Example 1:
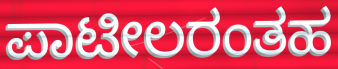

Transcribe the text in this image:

ಪಾಟೀಲರಂತಹ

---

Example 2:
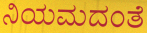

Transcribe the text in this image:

ನಿಯಮದಂತೆ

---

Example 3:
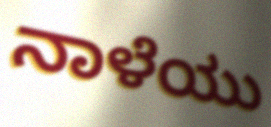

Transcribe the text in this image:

ನಾಳೆಯು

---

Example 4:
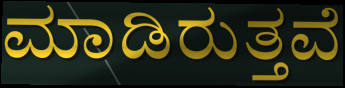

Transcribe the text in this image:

ಮಾಡಿರುತ್ತವೆ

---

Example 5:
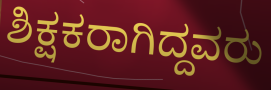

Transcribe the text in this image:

ಶಿಕ್ಷಕರಾಗಿದ್ದವರು